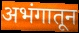
अभंगातून